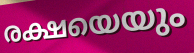
രക്ഷയെയും